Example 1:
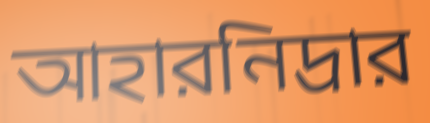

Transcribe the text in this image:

আহারনিদ্রার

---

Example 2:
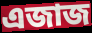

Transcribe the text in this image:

এজাজ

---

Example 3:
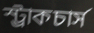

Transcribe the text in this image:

স্ট্রাকচার্স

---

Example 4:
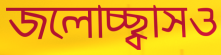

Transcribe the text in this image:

জলোচ্ছ্বাসও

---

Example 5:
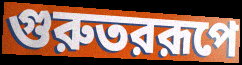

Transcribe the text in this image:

গুরুতররূপে